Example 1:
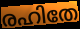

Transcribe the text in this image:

രഹിതേ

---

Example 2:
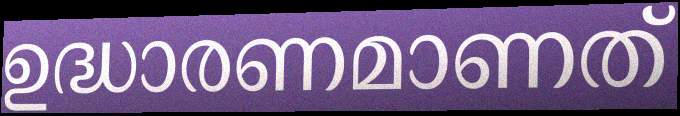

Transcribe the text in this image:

ഉദ്ധാരണമാണത്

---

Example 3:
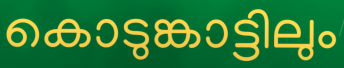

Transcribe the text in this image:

കൊടുങ്കാട്ടിലും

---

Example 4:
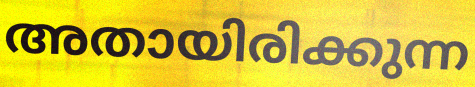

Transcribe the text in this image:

അതായിരിക്കുന്ന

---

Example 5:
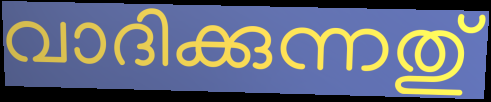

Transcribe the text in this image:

വാദിക്കുന്നതു്